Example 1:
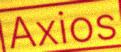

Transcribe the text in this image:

Axios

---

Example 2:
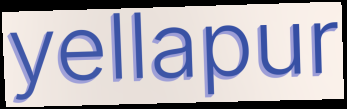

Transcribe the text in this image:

yellapur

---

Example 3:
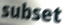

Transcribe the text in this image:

subset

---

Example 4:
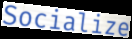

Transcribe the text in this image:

Socialize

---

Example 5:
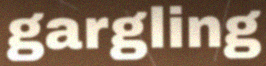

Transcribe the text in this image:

gargling